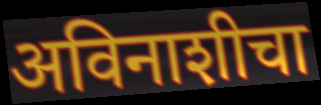
अविनाशीचा